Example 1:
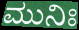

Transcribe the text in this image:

ಮುನಿಃ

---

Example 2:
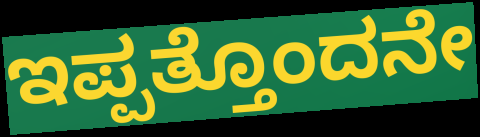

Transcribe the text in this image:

ಇಪ್ಪತ್ತೊಂದನೇ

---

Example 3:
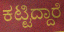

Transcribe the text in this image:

ಕಟ್ಟಿದ್ದಾರೆ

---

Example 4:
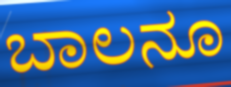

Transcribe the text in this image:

ಬಾಲನೂ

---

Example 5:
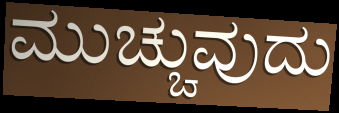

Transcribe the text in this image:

ಮುಚ್ಚುವುದು